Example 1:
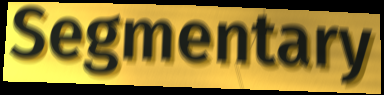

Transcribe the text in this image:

Segmentary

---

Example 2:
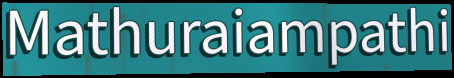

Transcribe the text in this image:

Mathuraiampathi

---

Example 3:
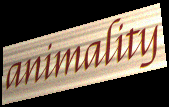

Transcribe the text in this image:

animality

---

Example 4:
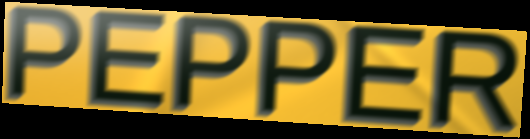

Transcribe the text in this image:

PEPPER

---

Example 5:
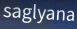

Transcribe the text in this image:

saglyana